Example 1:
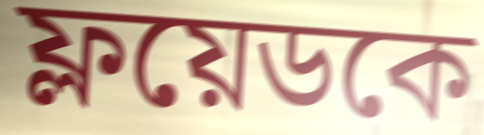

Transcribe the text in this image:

ফ্লয়েডকে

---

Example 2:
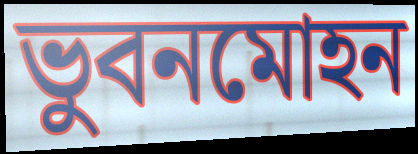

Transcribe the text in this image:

ভুবনমোহন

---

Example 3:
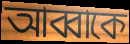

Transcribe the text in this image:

আব্বাকে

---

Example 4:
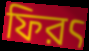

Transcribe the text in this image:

ফিরৎ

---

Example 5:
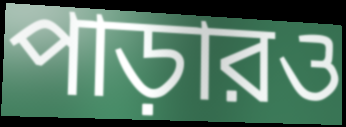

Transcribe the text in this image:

পাড়ারও